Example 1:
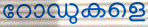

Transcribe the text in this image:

റോഡുകളെ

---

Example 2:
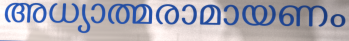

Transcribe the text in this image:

അധ്യാത്മരാമായണം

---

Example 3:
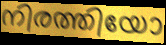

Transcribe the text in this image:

നിരത്തിയോ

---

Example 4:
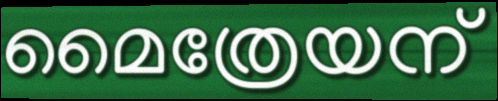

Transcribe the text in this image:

മൈത്രേയന്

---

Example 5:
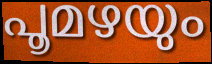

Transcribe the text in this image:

പൂമഴയും